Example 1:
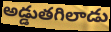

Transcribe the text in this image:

అడ్డుతగిలాడు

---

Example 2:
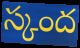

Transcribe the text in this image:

స్కంద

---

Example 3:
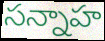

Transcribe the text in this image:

సన్నాహ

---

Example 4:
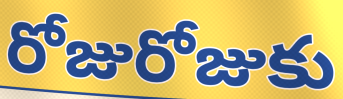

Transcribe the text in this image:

రోజురోజుకు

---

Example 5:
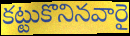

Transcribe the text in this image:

కట్టుకొనినవారై